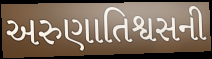
અરુણાતિશ્વસની